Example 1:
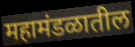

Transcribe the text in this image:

महामंडळातील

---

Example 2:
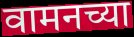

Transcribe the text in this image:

वामनच्या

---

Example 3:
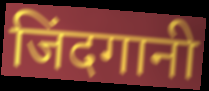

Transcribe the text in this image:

जिंदगानी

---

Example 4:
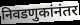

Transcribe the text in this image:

निवडणुकांनंतर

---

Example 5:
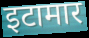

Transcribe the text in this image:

इटामार